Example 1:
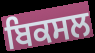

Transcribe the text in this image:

ਬਿਕਸਲ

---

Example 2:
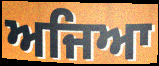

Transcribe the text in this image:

ਅਜਿਆ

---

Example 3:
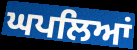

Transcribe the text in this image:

ਘਪਲਿਆਂ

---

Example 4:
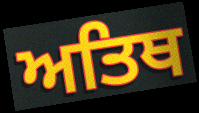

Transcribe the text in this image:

ਅਤਿਥ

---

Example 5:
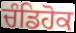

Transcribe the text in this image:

ਚੰਡਿਹੋਕ